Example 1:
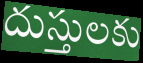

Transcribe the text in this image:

దుస్తులకు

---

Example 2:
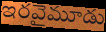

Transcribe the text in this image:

ఇరవైమూడు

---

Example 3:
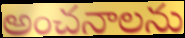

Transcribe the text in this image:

అంచనాలను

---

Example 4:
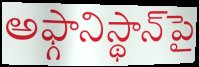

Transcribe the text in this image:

అఫ్గానిస్థాన్‌పై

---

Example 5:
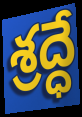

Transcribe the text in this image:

శ్రద్ధే